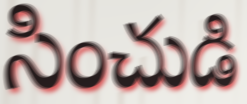
సించుడి